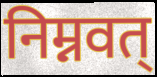
निम्नवत्